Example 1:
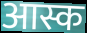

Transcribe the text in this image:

आस्क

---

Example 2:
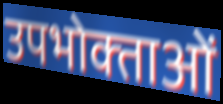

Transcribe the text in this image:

उपभोक्‍ताओं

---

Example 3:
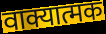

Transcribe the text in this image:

वाक्यात्मक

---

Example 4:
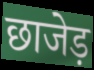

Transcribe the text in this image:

छाजेड़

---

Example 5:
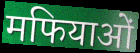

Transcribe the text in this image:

मफियाओं